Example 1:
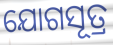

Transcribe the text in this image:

ଯୋଗସୂତ୍ର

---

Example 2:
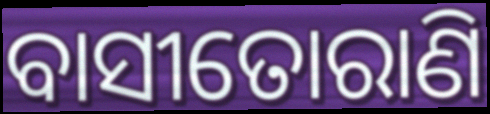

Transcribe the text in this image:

ବାସୀତୋରାଣି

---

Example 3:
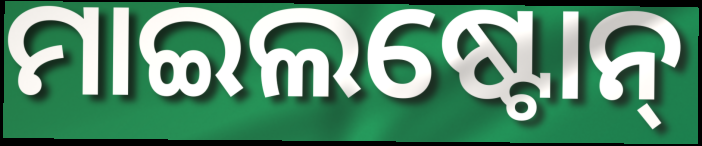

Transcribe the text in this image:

ମାଇଲଷ୍ଟୋନ୍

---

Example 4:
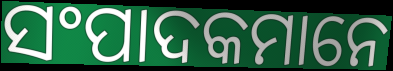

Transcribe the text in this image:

ସଂପାଦକମାନେ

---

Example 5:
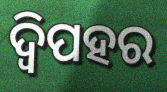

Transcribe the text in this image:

ଦ୍ୱିପହର